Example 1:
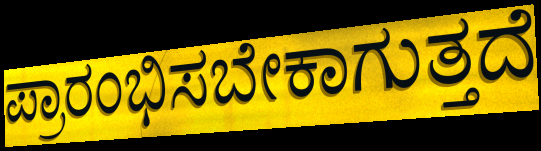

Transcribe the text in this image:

ಪ್ರಾರಂಭಿಸಬೇಕಾಗುತ್ತದೆ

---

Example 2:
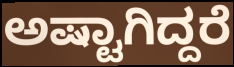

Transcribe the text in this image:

ಅಷ್ಟಾಗಿದ್ದರೆ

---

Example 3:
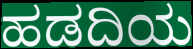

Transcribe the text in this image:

ಹಡದಿಯ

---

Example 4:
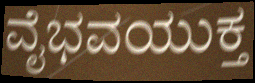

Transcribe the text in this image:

ವೈಭವಯುಕ್ತ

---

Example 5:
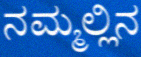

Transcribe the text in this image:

ನಮ್ಮಲ್ಲಿನ